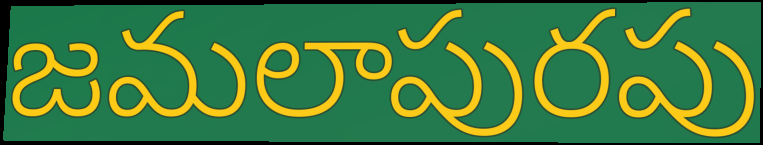
జమలాపురపు